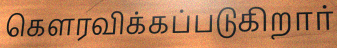
கௌரவிக்கப்படுகிறார்